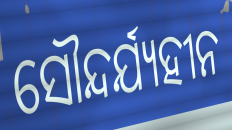
ସୌନ୍ଦର୍ଯ୍ୟହୀନ